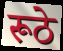
रूठे